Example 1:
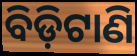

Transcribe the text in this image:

ବିଡ଼ିଟାଣି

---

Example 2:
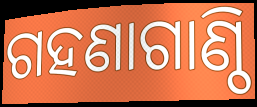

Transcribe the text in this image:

ଗହଣାଗାଣ୍ଠି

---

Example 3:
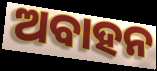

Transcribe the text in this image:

ଅବାହନ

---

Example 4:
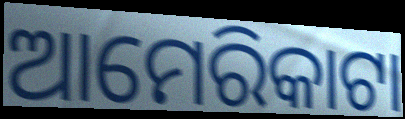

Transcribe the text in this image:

ଆମେରିକାଟା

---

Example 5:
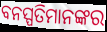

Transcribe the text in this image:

ବନସ୍ପତିମାନଙ୍କର